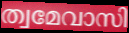
ത്വമേവാസി